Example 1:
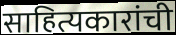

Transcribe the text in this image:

साहित्यकारांची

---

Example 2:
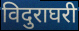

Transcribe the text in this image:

विदुराघरी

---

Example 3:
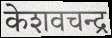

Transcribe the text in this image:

केशवचन्द्र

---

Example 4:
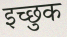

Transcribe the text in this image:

इच्छुक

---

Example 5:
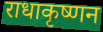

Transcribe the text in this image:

राधाकृष्णन